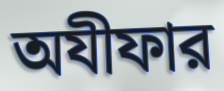
অযীফার